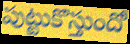
పుట్టుకొస్తుందో